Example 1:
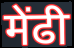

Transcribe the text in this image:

मेंढी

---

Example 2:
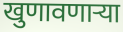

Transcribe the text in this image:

खुणावणाऱ्या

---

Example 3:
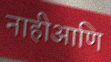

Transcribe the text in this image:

नाहीआणि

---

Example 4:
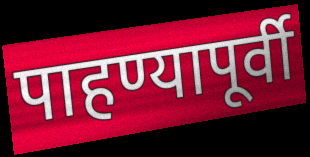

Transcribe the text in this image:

पाहण्यापूर्वी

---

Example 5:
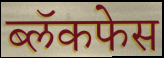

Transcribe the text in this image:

ब्लॅकफेस